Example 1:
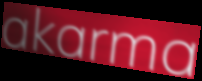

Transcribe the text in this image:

akarma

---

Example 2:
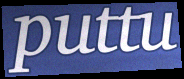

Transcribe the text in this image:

puttu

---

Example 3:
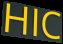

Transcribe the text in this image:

HIC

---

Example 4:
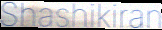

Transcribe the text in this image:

Shashikiran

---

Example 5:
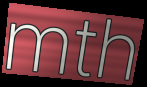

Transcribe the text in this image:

mth